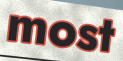
most